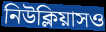
নিউক্লিয়াসও